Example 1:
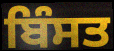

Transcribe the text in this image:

ਬਿੰਸਤ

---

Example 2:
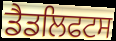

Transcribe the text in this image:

ਡੈਡਲਿਫਟਸ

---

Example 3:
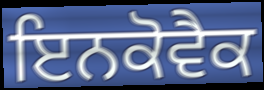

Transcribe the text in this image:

ਇਨਕੋਵੈਕ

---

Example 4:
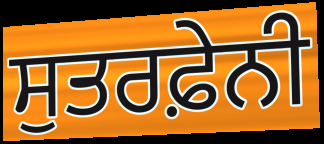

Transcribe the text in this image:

ਸੁਤਰਫ਼ੇਨੀ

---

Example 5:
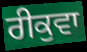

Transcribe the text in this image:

ਰੀਕੁਵਾ